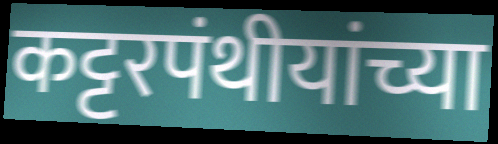
कट्टरपंथीयांच्या